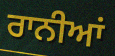
ਰਾਨੀਆਂ